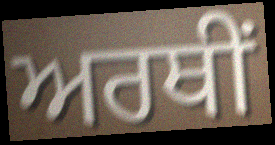
ਅਰਥੀਂ